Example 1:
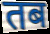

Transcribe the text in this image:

तब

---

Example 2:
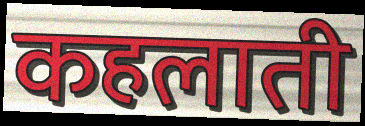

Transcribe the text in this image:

कहलाती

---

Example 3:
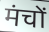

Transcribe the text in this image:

मंचों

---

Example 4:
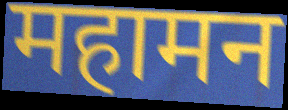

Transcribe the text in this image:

महामन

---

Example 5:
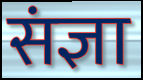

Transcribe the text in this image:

संज्ञा